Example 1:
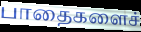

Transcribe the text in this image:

பாதைகளைச்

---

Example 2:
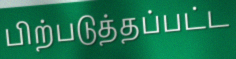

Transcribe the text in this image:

பிற்படுத்தப்பட்ட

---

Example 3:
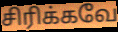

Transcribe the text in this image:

சிரிக்கவே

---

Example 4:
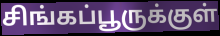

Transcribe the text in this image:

சிங்கப்பூருக்குள்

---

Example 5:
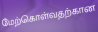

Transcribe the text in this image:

மேற்கொள்வதற்கான